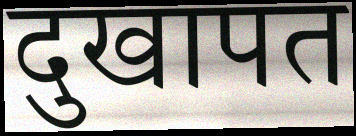
दुखापत